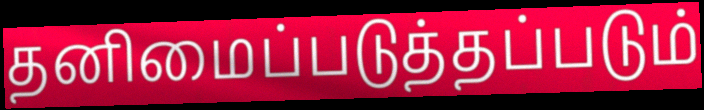
தனிமைப்படுத்தப்படும்